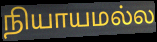
நியாயமல்ல